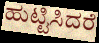
ಹುಟ್ಟಿಸಿದರೆ